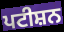
ਪਟੀਸ਼ਨ